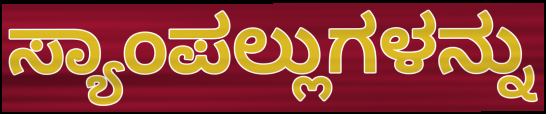
ಸ್ಯಾಂಪಲ್ಲುಗಳನ್ನು